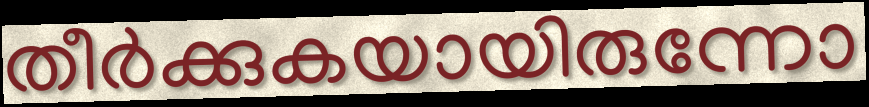
തീർക്കുകയായിരുന്നോ